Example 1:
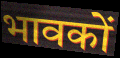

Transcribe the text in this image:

भावकों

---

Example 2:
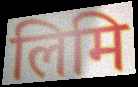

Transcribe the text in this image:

लिमि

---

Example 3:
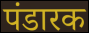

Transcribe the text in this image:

पंडारक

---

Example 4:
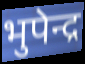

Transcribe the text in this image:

भुपेन्द्र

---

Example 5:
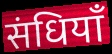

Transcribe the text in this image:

संधियाँ